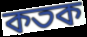
কতক